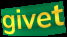
givet